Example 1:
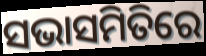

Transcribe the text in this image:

ସଭାସମିତିରେ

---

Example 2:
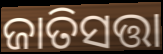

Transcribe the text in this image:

ଜାତିସତ୍ତା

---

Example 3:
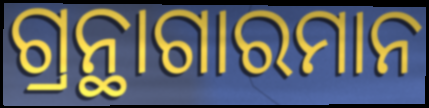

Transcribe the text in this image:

ଗ୍ରନ୍ଥାଗାରମାନ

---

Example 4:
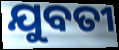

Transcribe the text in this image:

ଯୁବତୀ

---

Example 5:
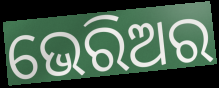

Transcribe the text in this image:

ଭେରିଅର